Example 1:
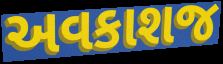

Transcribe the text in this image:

અવકાશજ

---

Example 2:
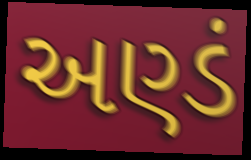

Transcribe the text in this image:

અણ્ડં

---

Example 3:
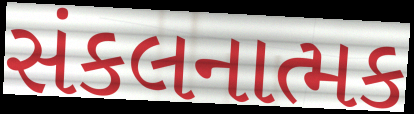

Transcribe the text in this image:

સંકલનાત્મક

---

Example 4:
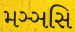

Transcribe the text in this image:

મઞ્ઞસિ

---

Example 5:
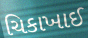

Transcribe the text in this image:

ચિકાખાઈ